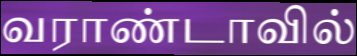
வராண்டாவில்